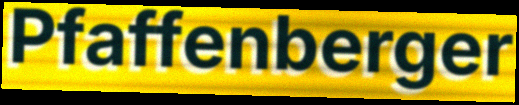
Pfaffenberger